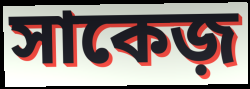
সাকেজ়